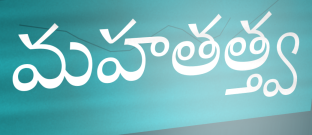
మహతత్త్వ